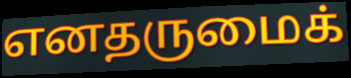
எனதருமைக்